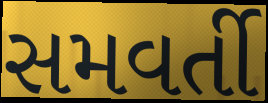
સમવર્તી